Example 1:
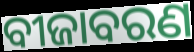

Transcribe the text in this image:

ବୀଜାବରଣ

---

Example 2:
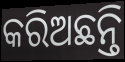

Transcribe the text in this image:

କରିଅଛନ୍ତି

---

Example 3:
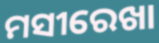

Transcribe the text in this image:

ମସୀରେଖା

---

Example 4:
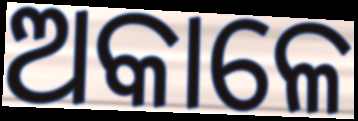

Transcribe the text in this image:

ଅକାଳେ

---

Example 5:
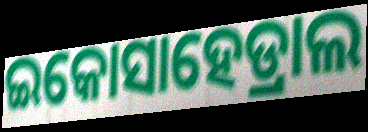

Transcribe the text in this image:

ଇକୋସାହେଡ୍ରାଲ